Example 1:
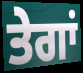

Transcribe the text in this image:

ਤੇਗਾਂ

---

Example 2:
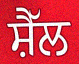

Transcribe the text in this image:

ਸ਼ੈੱਲ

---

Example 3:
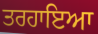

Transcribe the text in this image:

ਤਰਹਾਇਆ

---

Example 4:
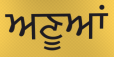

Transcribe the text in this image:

ਅਣੂਆਂ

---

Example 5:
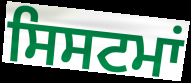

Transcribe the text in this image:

ਸਿਸਟਮਾਂ